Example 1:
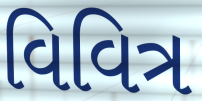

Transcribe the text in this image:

વિવિત્ર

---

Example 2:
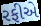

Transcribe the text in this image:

રફીએ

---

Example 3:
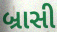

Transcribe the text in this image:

બ્રાસી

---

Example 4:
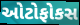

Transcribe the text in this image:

ઓટોફોકસ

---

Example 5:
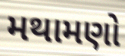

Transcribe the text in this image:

મથામણો